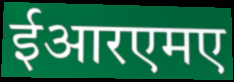
ईआरएमए